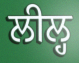
ਲੀਲ੍ਹ